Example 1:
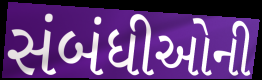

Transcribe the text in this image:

સંબંધીઓની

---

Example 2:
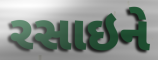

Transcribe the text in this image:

રસાઇને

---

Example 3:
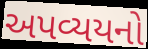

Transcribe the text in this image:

અપવ્યયનો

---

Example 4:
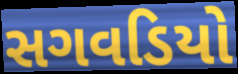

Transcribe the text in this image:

સગવડિયો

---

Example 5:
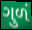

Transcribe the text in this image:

ગુળં